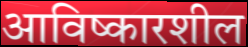
आविष्कारशील